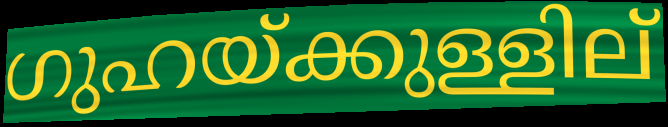
ഗുഹയ്ക്കുള്ളില്